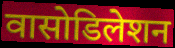
वासोडिलेशन